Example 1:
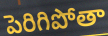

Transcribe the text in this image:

పెరిగిపోతా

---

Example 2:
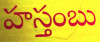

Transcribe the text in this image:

హస్తంబు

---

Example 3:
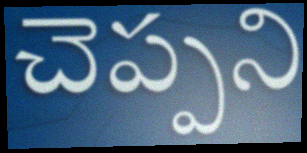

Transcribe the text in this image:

చెప్పని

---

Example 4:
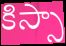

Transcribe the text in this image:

కిస్సా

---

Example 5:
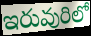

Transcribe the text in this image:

ఇరువురిలో